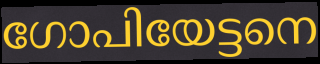
ഗോപിയേട്ടനെ